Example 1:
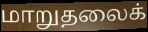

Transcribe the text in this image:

மாறுதலைக்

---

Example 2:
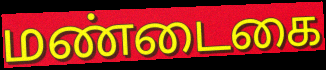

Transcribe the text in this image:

மண்டைகை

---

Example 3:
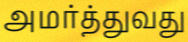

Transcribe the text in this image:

அமர்த்துவது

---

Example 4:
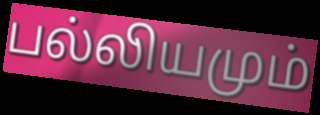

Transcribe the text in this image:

பல்லியமும்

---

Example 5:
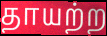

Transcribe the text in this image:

தாயற்ற